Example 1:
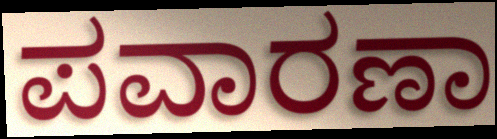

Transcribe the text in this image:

ಪವಾರಣಾ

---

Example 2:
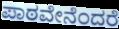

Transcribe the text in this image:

ಪಾಠವೇನೆಂದರೆ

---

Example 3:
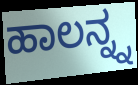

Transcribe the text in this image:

ಹಾಲನ್ನ್ನ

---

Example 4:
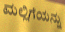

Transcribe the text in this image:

ಮಲ್ಲಿಗೆಯನ್ನು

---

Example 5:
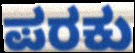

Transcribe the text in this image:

ಪರಕು